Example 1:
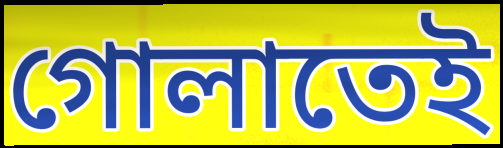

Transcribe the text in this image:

গোলাতেই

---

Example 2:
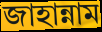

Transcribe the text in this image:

জাহান্নাম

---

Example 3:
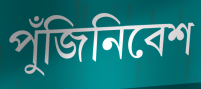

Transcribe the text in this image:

পুঁজিনিবেশ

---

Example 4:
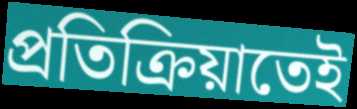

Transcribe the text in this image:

প্রতিক্রিয়াতেই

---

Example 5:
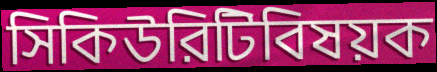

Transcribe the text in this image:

সিকিউরিটিবিষয়ক